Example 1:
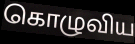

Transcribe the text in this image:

கொழுவிய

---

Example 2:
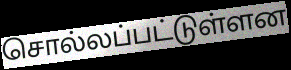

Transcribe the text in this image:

சொல்லப்பட்டுள்ளன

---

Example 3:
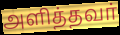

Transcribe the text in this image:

அளித்தவர்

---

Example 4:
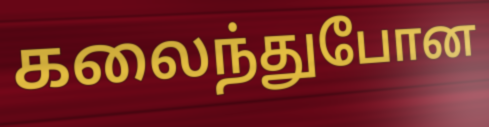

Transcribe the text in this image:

கலைந்துபோன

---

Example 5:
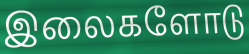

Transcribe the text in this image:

இலைகளோடு